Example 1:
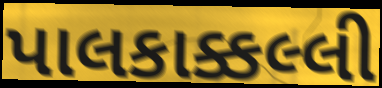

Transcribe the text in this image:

પાલકાક્કલ્લી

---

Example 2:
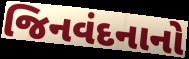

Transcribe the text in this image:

જિનવંદનાનો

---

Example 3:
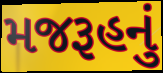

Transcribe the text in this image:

મજરૂહનું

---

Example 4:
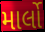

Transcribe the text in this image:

માર્લો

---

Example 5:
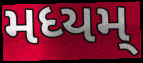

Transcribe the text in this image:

મધ્યમ્